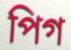
পিগ